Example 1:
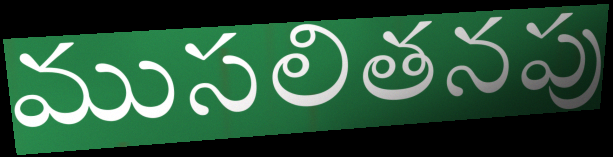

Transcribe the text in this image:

ముసలితనపు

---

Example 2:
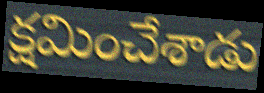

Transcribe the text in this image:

క్షమించేశాడు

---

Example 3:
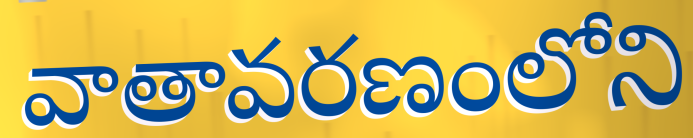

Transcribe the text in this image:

వాతావరణంలోని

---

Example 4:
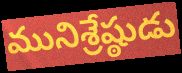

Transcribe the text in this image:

మునిశ్రేష్ఠుడు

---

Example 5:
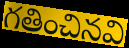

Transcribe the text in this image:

గతించినవి